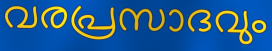
വരപ്രസാദവും